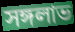
সঙ্গলাভ